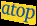
atop